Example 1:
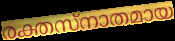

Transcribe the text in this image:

രക്തസ്നാതമായ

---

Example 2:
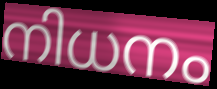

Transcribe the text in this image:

നിധനം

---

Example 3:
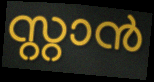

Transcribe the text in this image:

സ്റ്റാൻ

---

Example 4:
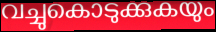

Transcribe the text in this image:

വച്ചുകൊടുക്കുകയും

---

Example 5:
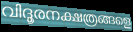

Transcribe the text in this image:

വിദൂരനക്ഷത്രങ്ങളെ